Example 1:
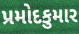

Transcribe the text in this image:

પ્રમોદકુમાર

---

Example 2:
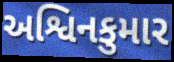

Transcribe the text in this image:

અશ્વિનકુમાર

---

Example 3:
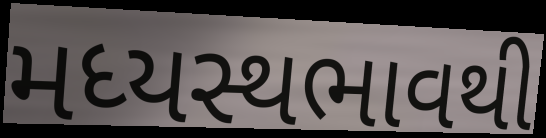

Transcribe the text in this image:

મધ્યસ્થભાવથી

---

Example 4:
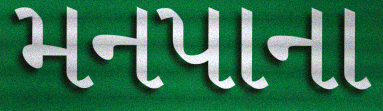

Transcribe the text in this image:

મનપાના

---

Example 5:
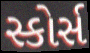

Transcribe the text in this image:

સ્કોર્સ